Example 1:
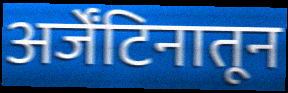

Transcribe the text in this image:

अर्जेंटिनातून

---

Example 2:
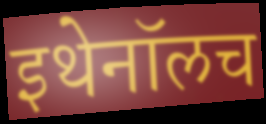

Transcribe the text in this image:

इथेनॉलच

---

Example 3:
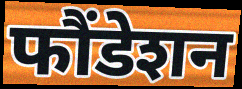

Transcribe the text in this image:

फौंडेशन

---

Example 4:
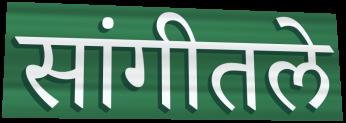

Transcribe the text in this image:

सांगीतले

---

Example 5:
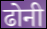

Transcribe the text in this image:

ढोनी